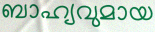
ബാഹ്യവുമായ